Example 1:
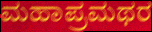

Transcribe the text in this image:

ಮಹಾಪ್ರಮಥರ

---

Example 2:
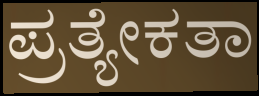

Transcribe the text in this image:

ಪ್ರತ್ಯೇಕತಾ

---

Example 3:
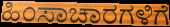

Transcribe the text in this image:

ಹಿಂಸಾಚಾರಗಳಿಗೆ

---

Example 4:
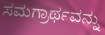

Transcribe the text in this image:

ಸಮಗ್ರಾರ್ಥವನ್ನು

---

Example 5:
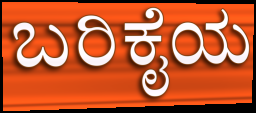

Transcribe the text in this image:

ಬರಿಕೈಯ